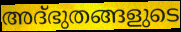
അദ്ഭുതങ്ങളുടെ